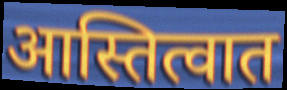
आस्तित्वात